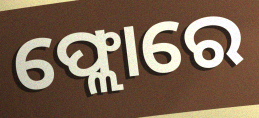
ଫ୍ଲୋରେ